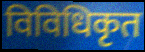
विविधिकृत